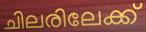
ചിലരിലേക്ക്